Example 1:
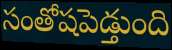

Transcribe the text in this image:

సంతోషపెడ్తుంది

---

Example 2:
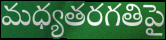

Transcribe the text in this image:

మధ్యతరగతిపై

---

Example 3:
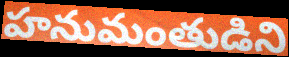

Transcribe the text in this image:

హనుమంతుడిని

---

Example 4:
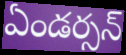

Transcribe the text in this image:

ఏండర్సన్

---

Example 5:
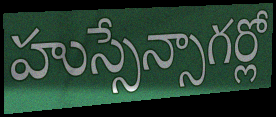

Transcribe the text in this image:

హుస్సేన్సాగర్లో